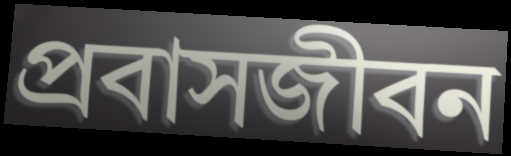
প্রবাসজীবন